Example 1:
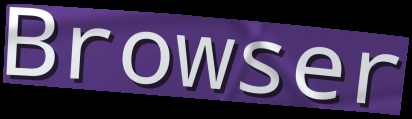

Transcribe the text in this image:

Browser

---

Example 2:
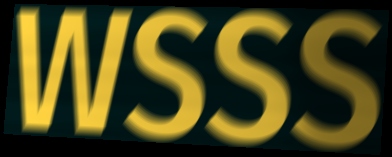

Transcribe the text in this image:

WSSS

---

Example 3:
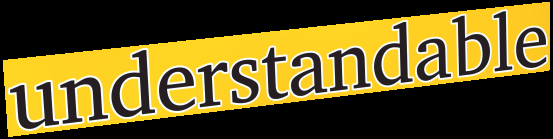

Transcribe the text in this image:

understandable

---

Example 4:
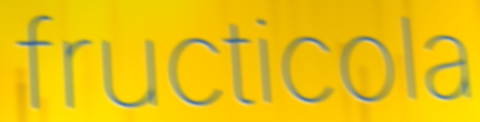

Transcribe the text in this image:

fructicola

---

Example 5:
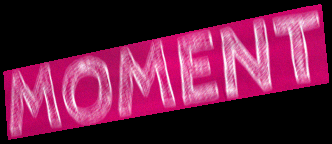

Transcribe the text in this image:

MOMENT